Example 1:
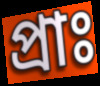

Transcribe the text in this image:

প্রাঃ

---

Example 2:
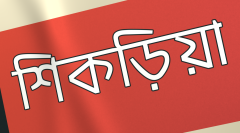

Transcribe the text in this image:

শিকড়িয়া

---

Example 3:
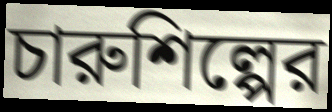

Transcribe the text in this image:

চারুশিল্পের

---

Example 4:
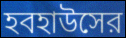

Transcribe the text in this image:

হবহাউসের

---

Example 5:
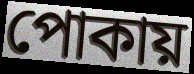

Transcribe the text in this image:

পোকায়